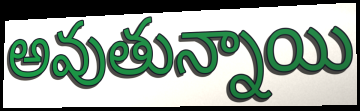
అవుతున్నాయి